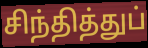
சிந்தித்துப்